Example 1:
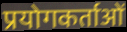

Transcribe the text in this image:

प्रयोगकर्ताओं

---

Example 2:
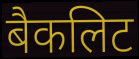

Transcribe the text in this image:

बैकलिट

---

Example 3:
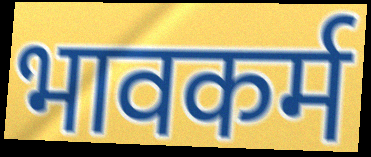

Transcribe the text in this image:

भावकर्म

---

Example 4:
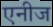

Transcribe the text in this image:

एनीज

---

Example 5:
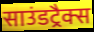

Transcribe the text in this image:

साउंडट्रैक्स